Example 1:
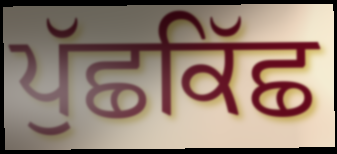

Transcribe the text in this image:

ਪੁੱਛਕਿੱਛ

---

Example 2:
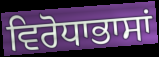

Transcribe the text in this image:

ਵਿਰੋਧਾਭਾਸਾਂ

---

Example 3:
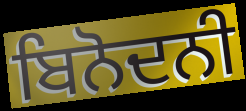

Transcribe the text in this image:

ਬਿਨੋਦਨੀ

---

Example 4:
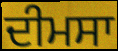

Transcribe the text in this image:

ਦੀਮਸਾ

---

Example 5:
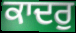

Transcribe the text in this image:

ਕਾਦਰੁ